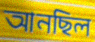
আনছিল